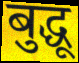
बुद्धू